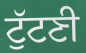
ਟੁੱਟਣੀ